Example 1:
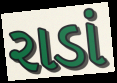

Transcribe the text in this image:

રાડાં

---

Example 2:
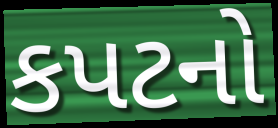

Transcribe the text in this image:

કપટનો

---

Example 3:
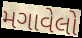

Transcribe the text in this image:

મગાવેલો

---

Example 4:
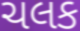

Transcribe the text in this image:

ચલક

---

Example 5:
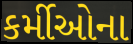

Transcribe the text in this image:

કર્મીઓના